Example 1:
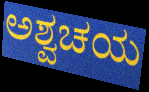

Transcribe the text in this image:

ಅಶ್ವಚಯ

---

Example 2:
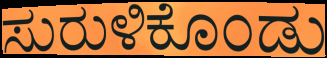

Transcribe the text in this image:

ಸುರುಳಿಕೊಂಡು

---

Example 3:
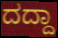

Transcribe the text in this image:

ದದ್ದಾ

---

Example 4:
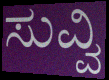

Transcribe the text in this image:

ಸುವ್ವಿ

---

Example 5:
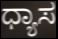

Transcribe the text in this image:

ಧ್ಯಾಸ